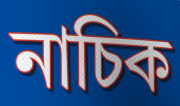
নাচিক